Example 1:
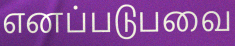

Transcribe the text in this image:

எனப்படுபவை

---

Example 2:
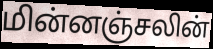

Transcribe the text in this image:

மின்னஞ்சலின்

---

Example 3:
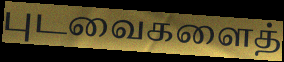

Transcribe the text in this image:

புடவைகளைத்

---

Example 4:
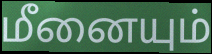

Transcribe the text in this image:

மீனையும்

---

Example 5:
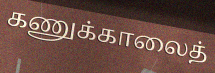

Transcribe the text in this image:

கணுக்காலைத்